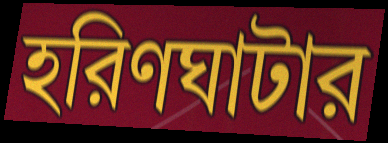
হরিণঘাটার